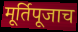
मूर्तिपूजाच